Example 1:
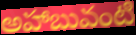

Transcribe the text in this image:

అహాబువంటి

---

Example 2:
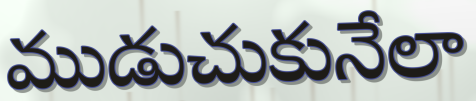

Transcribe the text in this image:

ముడుచుకునేలా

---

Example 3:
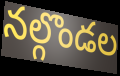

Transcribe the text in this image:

నల్గొండల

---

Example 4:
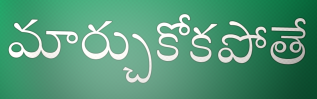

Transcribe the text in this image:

మార్చుకోకపోతే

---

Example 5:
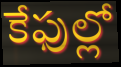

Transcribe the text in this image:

కేఫుల్లో